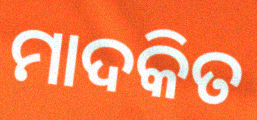
ମାଦକିତ